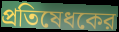
প্রতিষেধকের